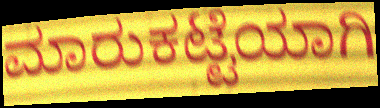
ಮಾರುಕಟ್ಟೆಯಾಗಿ